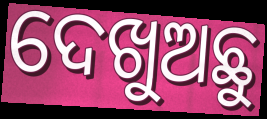
ଦେଖୁଅଛୁ